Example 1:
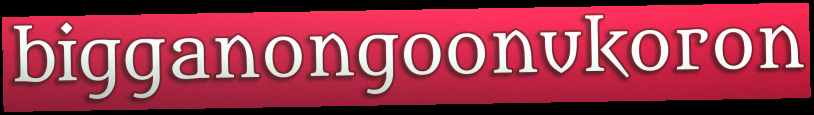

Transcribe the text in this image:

bigganongoonukoron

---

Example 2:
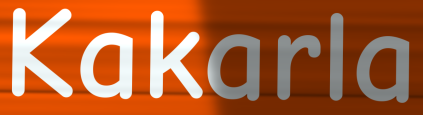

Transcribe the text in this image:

Kakarla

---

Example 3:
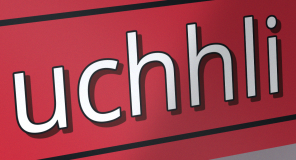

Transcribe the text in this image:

uchhli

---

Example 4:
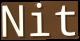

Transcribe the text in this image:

Nit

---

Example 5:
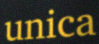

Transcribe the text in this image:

unica